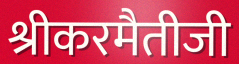
श्रीकरमैतीजी